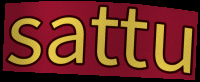
sattu